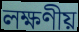
লক্ষণীয়